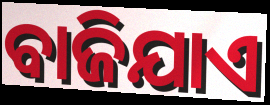
ବାଜିଯାଏ